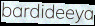
bardideeya